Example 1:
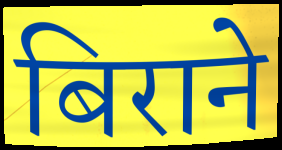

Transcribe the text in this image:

बिराने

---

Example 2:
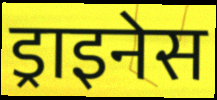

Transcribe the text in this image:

ड्राइनेस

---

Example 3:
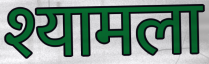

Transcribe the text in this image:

श्यामला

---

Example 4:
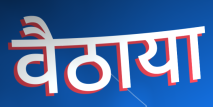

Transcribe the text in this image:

वैठाया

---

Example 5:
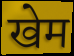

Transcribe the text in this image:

खेम